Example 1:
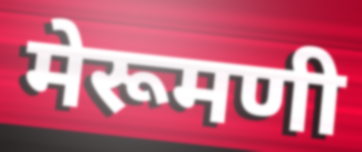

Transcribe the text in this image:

मेरूमणी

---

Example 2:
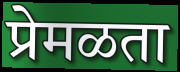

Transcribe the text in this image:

प्रेमळता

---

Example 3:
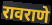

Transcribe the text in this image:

रावराणे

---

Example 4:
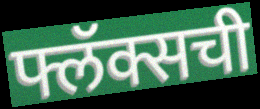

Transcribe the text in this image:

फ्लॅक्सची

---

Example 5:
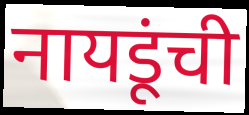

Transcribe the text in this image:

नायडूंची